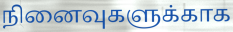
நினைவுகளுக்காக